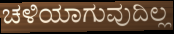
ಚಳಿಯಾಗುವುದಿಲ್ಲ